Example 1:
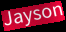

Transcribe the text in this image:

Jayson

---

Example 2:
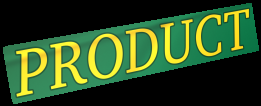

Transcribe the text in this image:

PRODUCT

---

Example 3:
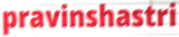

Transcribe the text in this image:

pravinshastri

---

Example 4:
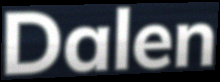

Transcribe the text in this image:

Dalen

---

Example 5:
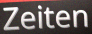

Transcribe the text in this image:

Zeiten